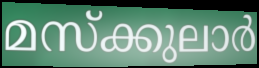
മസ്ക്കുലാർ